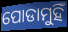
ପୋଡାମୁହିଁ